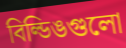
বিল্ডিঙগুলো